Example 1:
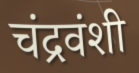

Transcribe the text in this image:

चंद्रवंशी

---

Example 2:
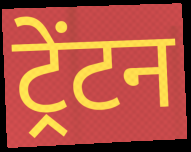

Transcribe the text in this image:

ट्रेंटन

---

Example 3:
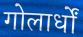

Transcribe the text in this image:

गोलार्धों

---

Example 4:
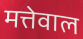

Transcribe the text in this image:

मत्तेवाल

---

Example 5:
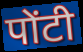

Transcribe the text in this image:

पोंटी